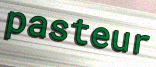
pasteur